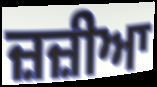
ਜ਼ਜ਼ੀਆ